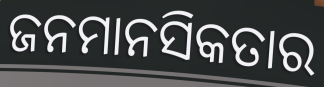
ଜନମାନସିକତାର